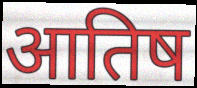
आतिष